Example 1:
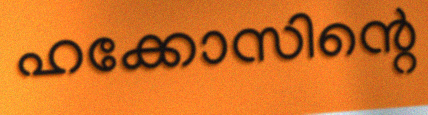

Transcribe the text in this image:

ഹക്കോസിന്റെ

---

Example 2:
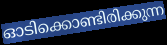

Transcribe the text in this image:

ഓടിക്കൊണ്ടിരിക്കുന്ന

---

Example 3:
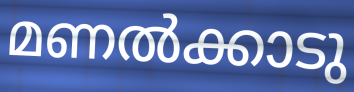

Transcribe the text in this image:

മണൽക്കാടു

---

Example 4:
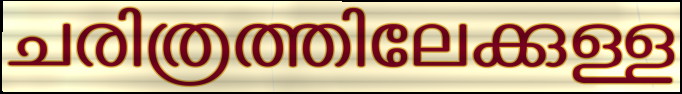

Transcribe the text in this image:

ചരിത്രത്തിലേക്കുള്ള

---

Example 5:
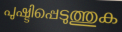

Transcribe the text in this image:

പുഷ്ടിപ്പെടുത്തുക